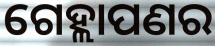
ଗେହ୍ଲାପଣର